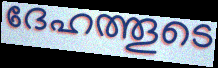
ദേഹത്തൂടെ